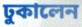
ঢুকালেন